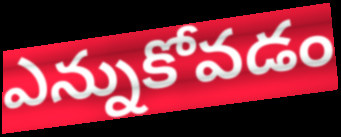
ఎన్నుకోవడం